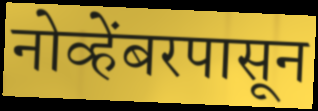
नोव्हेंबरपासून